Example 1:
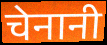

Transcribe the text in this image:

चेनानी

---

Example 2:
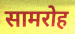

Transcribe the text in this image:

सामरोह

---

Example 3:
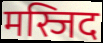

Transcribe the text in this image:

मस्जिद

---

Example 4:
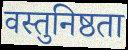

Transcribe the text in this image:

वस्तुनिष्ठता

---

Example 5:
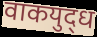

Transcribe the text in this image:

वाकयुद्ध